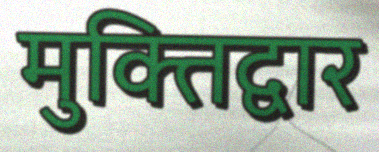
मुक्तिद्वार